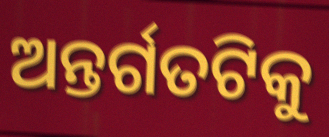
ଅନ୍ତର୍ଗତଟିକୁ